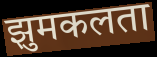
झुमकलता